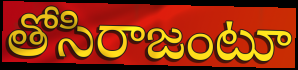
తోసిరాజంటూ